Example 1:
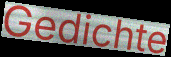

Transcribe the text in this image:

Gedichte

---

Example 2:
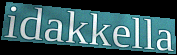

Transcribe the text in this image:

idakkella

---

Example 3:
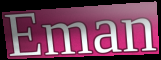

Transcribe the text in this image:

Eman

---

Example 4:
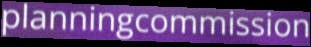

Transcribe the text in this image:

planningcommission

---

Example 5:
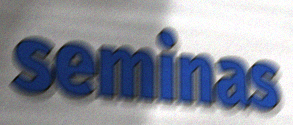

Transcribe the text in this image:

seminas